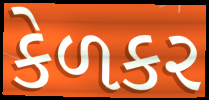
કેળકર